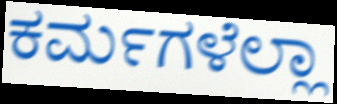
ಕರ್ಮಗಳೆಲ್ಲಾ